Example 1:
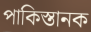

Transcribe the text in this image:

পাকিস্তানক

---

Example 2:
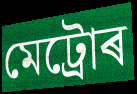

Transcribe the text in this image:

মেট্ৰোৰ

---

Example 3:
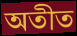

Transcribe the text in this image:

অতীত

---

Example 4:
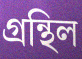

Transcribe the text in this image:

গ্ৰন্থিল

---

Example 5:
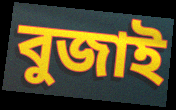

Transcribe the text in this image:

বুজাই